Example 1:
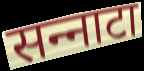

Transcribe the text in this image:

सन्‍नाटा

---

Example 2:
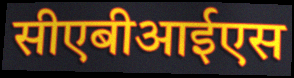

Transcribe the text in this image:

सीएबीआईएस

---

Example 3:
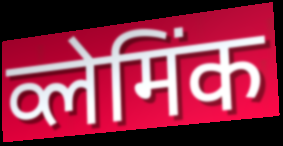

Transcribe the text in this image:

व्लेमिंक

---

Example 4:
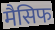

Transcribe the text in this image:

मैसिफ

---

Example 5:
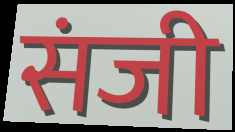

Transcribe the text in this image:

संजी